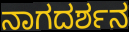
ನಾಗದರ್ಶನ